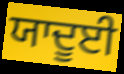
ਯਾਦੂਈ